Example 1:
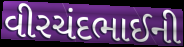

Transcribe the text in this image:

વીરચંદભાઈની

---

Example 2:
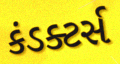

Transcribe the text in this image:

કંડક્ટર્સ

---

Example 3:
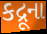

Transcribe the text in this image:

કદ્રૂના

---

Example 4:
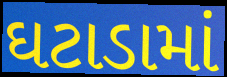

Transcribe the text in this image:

ઘટાડામાં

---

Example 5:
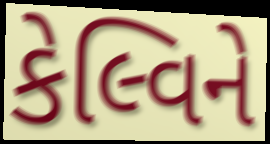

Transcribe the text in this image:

કેલ્વિને